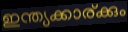
ഇന്ത്യക്കാര്ക്കും